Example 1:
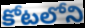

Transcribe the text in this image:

కోటలోని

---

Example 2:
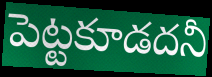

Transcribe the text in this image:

పెట్టకూడదనీ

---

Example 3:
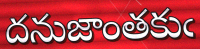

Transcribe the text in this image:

దనుజాంతకుఁ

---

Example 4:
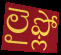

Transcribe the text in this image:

లైఫ్లో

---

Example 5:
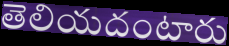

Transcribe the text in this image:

తెలియదంటారు